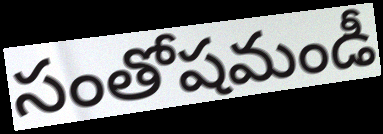
సంతోషమండీ